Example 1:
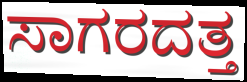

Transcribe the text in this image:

ಸಾಗರದತ್ತ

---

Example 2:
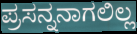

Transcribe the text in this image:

ಪ್ರಸನ್ನನಾಗಲಿಲ್ಲ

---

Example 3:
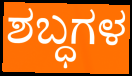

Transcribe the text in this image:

ಶಬ್ಧಗಳ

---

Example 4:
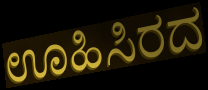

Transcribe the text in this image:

ಊಹಿಸಿರದ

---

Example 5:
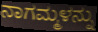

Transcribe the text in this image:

ನಾಗಮ್ಮಳನ್ನು